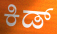
ಕಿಡ್